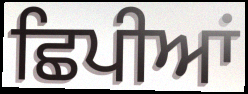
ਛਿਪੀਆਂ